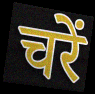
चरें